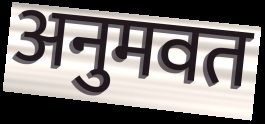
अनुमवत